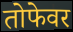
तोफेवर